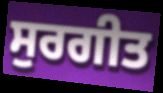
ਸੁਰਗੀਤ